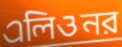
এলিওনর